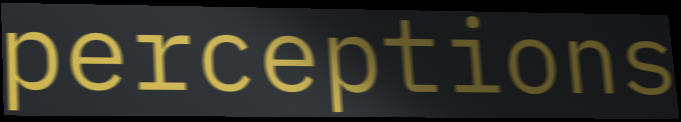
perceptions